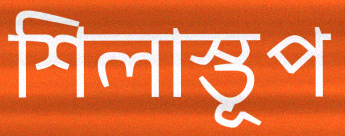
শিলাস্তূপ